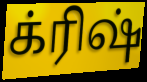
க்ரிஷ்